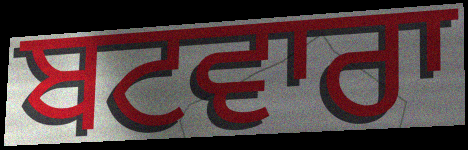
ਬਟਵਾਰਾ